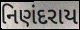
નિણંદરાય